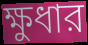
ক্ষুধার